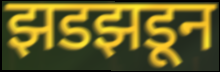
झडझडून